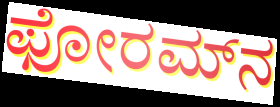
ಫೋರಮ್‌ನ